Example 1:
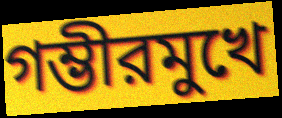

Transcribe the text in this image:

গম্ভীরমুখে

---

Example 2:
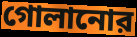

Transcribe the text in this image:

গোলানোর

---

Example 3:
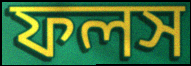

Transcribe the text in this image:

ফলস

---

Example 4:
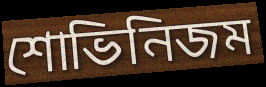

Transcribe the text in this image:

শোভিনিজম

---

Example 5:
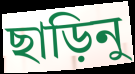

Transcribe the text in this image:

ছাড়িনু